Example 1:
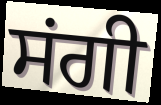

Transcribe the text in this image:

ਸਂਗੀ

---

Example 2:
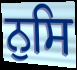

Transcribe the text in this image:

ਨੁਸਿ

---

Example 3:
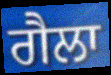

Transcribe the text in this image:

ਗੈਲਾ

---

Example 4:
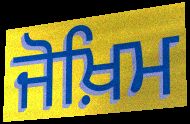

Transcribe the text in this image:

ਜੋਖ਼ਿਮ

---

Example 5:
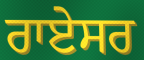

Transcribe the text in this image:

ਰਾਏਸਰ